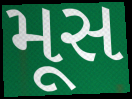
મૂસ